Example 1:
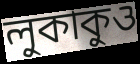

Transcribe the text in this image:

লুকাকুও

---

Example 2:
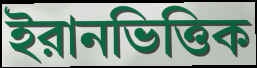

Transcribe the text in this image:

ইরানভিত্তিক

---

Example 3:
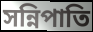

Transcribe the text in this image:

সন্নিপাতি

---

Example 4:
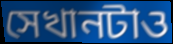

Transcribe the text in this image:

সেখানটাও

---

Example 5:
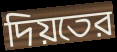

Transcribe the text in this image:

দিয়তের